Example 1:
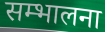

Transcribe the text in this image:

सम्भालना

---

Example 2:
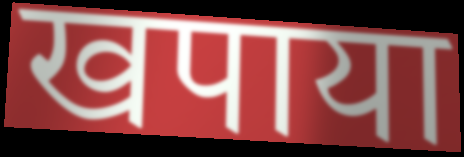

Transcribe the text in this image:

खपाया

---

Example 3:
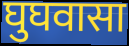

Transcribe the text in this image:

घुघवासा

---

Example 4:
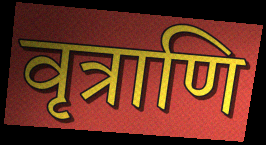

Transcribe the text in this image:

वृत्राणि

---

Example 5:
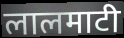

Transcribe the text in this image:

लालमाटी